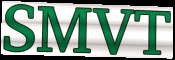
SMVT